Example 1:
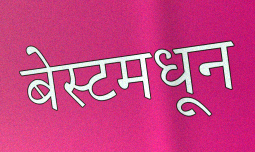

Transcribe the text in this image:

बेस्टमधून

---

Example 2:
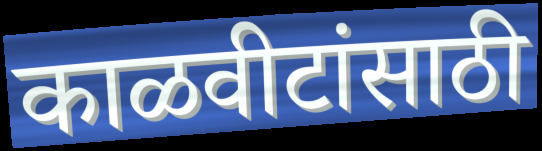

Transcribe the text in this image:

काळवीटांसाठी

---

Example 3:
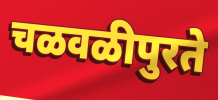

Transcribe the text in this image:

चळवळीपुरते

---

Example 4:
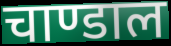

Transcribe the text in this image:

चाण्डाल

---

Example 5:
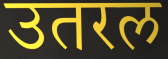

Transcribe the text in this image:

उतरल